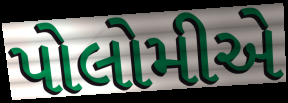
પોલોમીએ